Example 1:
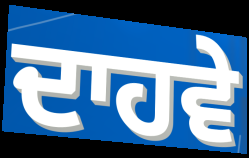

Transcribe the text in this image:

ਦਾਹਵੇ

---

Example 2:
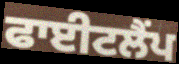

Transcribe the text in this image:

ਫਾਈਟਲੈਂਪ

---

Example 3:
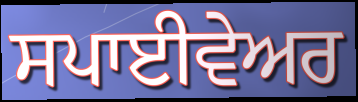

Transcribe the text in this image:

ਸਪਾਈਵੇਅਰ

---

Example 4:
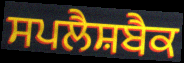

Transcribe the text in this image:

ਸਪਲੈਸ਼ਬੈਕ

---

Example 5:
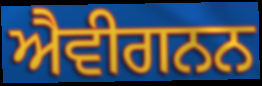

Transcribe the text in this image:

ਐਵੀਗਨਨ